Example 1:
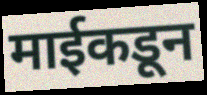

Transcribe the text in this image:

माईकडून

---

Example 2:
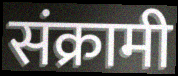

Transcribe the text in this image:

संक्रामी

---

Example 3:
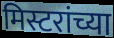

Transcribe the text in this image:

मिस्टरांच्या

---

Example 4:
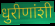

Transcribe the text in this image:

धुरीणांशी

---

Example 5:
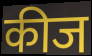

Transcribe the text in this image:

कीज